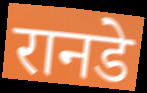
रानडे